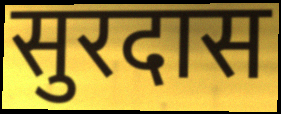
सुरदास